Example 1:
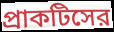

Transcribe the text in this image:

প্রাকটিসের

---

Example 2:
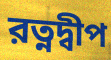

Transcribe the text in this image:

রত্নদ্বীপ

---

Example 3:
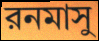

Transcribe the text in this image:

রনমাসু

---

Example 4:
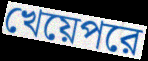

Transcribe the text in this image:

খেয়েপরে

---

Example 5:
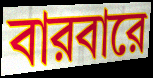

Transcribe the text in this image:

বারবারে